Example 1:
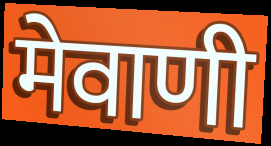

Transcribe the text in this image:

मेवाणी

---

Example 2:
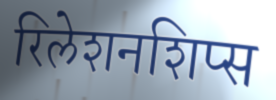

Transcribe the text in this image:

रिलेशनशिप्स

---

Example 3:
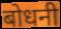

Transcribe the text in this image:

बोधनी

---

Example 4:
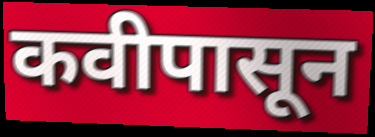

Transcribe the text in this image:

कवीपासून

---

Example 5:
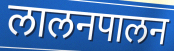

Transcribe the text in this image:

लालनपालन